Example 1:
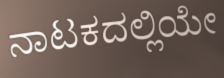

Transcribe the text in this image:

ನಾಟಕದಲ್ಲಿಯೇ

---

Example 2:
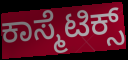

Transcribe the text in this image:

ಕಾಸ್ಮೆಟಿಕ್ಸ್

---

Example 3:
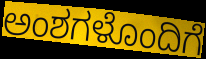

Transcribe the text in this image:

ಅಂಶಗಳೊಂದಿಗೆ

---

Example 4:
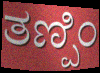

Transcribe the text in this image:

ತಣ್ಪಿಂ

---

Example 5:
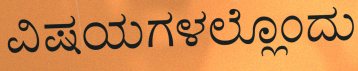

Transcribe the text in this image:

ವಿಷಯಗಳಲ್ಲೊಂದು